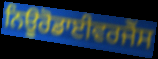
ਨਿਊਰੋਡਾਈਵਰਜੈਂਸ